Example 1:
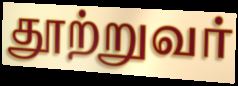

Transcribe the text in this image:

தூற்றுவர்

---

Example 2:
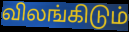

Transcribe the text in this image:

விலங்கிடும்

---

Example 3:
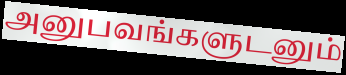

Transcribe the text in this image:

அனுபவங்களுடனும்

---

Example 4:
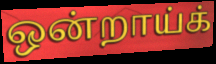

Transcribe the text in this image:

ஒன்றாய்க்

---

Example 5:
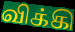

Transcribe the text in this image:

விக்கி